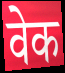
वेक